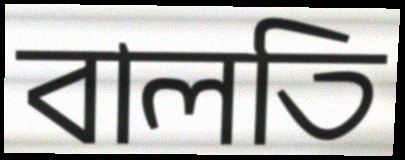
বালতি